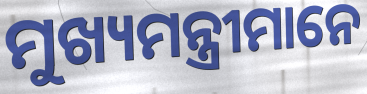
ମୁଖ୍ୟମନ୍ତ୍ରୀମାନେ